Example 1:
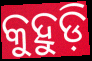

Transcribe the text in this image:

କୁହୁଡ଼ି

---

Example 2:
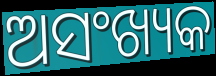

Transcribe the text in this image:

ଅସଂଖ୍ୟକ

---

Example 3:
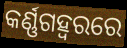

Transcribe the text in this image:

କର୍ଣ୍ଣଗହ୍ଵରରେ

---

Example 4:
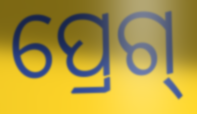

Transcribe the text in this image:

ପ୍ରେଗ୍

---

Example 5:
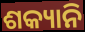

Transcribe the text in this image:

ଶକ୍ୟାନି